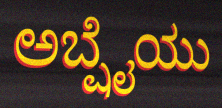
ಅಬ್ಷೈಯು